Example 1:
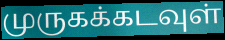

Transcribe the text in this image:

முருகக்கடவுள்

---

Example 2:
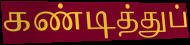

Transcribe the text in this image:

கண்டித்துப்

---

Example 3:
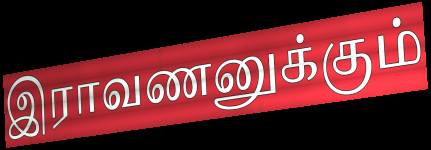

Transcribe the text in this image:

இராவணனுக்கும்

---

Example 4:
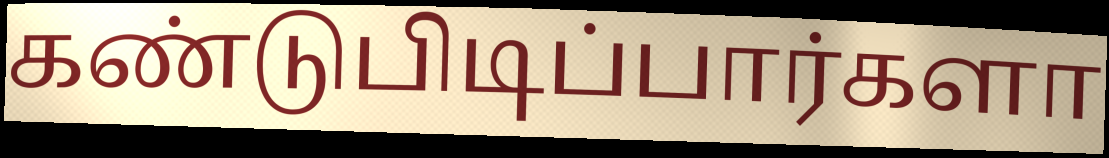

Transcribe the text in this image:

கண்டுபிடிப்பார்களா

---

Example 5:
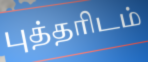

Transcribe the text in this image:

புத்தரிடம்